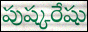
పుష్కరేషు